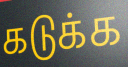
கடுக்க